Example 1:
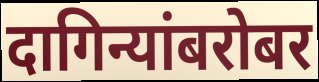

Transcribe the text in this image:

दागिन्यांबरोबर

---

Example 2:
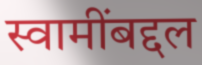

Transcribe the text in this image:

स्वामींबद्दल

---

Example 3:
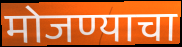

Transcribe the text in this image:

मोजण्याचा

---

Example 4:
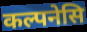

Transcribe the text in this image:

कल्पनेसि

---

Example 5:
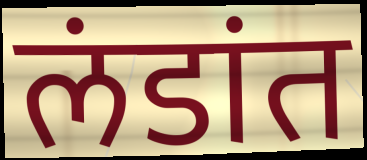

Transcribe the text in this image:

लंडांत